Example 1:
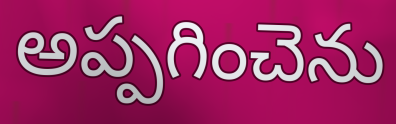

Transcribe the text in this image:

అప్పగించెను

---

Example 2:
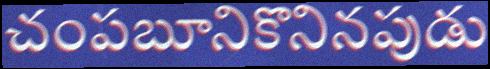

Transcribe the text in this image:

చంపబూనికొనినపుడు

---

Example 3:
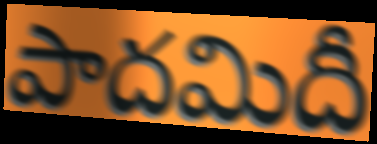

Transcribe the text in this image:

పాదమిదీ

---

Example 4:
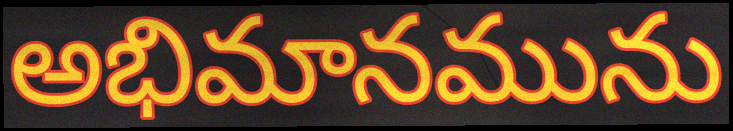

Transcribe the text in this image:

అభిమానమును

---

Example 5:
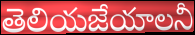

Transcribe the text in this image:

తెలియజేయాలనీ